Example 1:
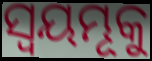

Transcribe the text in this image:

ସ୍ଵୟମ୍ଭୂକୁ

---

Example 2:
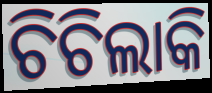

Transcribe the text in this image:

ଚିଚିଲାକି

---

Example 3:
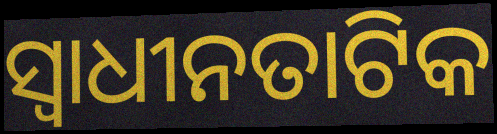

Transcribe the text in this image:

ସ୍ୱାଧୀନତାଟିକ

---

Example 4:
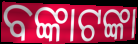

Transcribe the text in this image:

ବଙ୍କାଟଙ୍କା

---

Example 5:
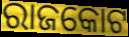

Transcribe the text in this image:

ରାଜକୋଟ